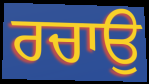
ਰਚਾਉ